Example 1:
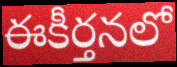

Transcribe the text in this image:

ఈకీర్తనలో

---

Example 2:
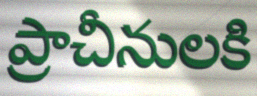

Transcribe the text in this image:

ప్రాచీనులకి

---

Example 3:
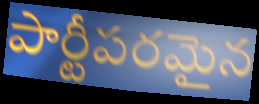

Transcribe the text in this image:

పార్టీపరమైన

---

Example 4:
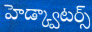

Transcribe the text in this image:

హెడ్క్వాటర్స్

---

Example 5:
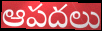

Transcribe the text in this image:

ఆపదలు